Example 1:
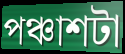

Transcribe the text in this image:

পঞ্চাশটা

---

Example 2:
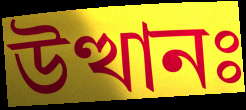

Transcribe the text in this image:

উত্থানঃ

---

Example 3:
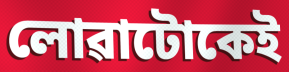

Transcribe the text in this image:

লোৱাটোকেই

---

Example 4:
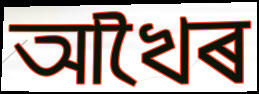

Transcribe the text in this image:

আখৈৰ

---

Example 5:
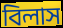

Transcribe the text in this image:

বিলাস